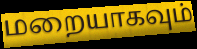
மறையாகவும்